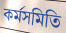
কর্মসমিতি